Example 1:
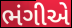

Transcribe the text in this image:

ભંગીએ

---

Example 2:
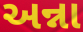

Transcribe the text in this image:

અન્ના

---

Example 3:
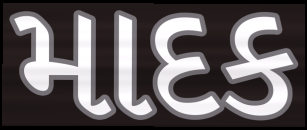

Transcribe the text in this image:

માદક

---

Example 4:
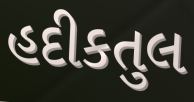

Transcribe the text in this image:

હદીકતુલ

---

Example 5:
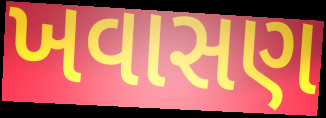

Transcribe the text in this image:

ખવાસણ